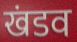
खंडव